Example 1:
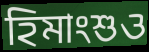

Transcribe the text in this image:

হিমাংশুও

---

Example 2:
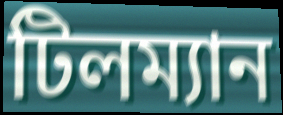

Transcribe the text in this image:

টিলম্যান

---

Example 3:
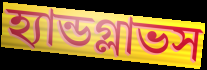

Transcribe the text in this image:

হ্যান্ডগ্লাভস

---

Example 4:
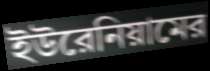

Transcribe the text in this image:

ইউরেনিয়ামের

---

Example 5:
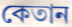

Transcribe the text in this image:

কেতান